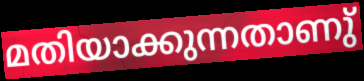
മതിയാക്കുന്നതാണു്